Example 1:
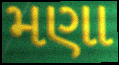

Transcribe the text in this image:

મણા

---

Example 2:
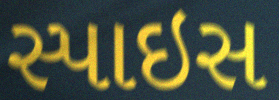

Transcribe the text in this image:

સ્પાઇસ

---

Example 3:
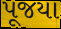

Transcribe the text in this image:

પૂજયા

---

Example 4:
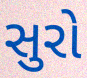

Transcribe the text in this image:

સુરો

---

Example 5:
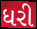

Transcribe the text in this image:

ધરી